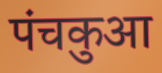
पंचकुआ